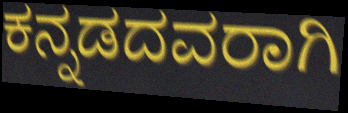
ಕನ್ನಡದವರಾಗಿ